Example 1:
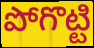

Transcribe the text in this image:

పోగొట్టి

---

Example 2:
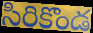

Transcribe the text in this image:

సిరికొండ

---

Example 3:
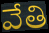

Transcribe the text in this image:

వేతి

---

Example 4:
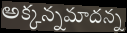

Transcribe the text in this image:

అక్కన్నమాదన్న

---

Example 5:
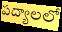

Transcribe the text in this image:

పద్యాలలో